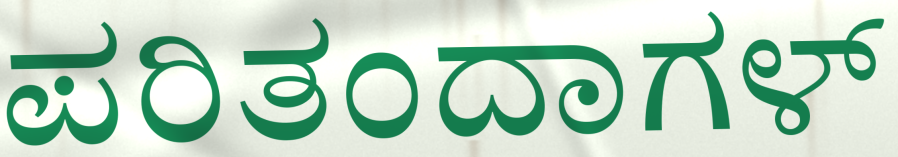
ಪರಿತಂದಾಗಳ್